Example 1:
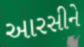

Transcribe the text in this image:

આરસીને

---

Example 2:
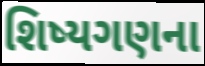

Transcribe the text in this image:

શિષ્યગણના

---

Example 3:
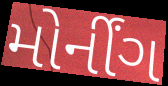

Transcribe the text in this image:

મોર્નીંગ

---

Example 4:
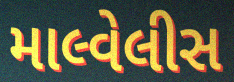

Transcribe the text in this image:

માલ્વેલીસ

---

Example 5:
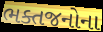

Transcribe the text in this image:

ભક્તજનોના